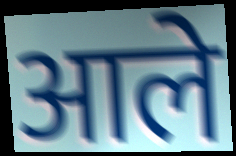
आले